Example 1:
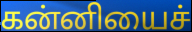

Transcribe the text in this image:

கன்னியைச்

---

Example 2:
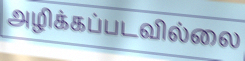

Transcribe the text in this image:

அழிக்கப்படவில்லை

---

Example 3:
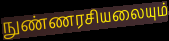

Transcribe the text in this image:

நுண்ணரசியலையும்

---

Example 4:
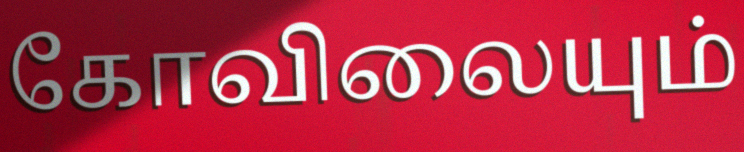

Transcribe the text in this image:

கோவிலையும்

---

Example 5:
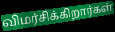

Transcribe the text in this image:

விமர்சிக்கிறார்கள்